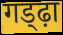
गड्ढ़ा